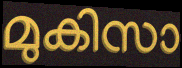
മുകിസാ